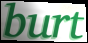
burt